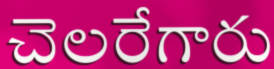
చెలరేగారు